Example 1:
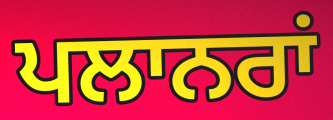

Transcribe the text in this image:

ਪਲਾਨਰਾਂ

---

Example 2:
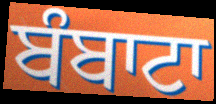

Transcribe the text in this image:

ਬੰਬਾਟਾ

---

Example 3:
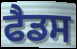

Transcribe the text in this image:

ਫੈਡਸ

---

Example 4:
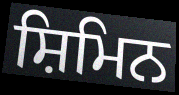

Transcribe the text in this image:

ਸ਼ਿਮਿਨ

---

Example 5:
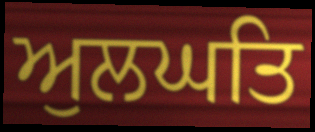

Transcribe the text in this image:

ਅੁਲਘਤਿ